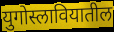
युगोस्लावियातील